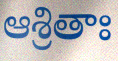
ఆశ్రితాః